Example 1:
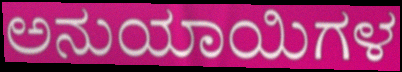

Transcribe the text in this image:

ಅನುಯಾಯಿಗಳ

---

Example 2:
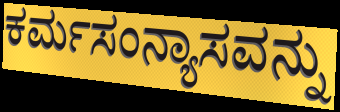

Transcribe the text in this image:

ಕರ್ಮಸಂನ್ಯಾಸವನ್ನು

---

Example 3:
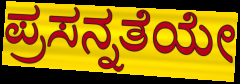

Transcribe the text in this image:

ಪ್ರಸನ್ನತೆಯೇ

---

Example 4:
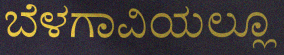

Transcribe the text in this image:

ಬೆಳಗಾವಿಯಲ್ಲೂ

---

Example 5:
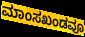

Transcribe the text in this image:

ಮಾಂಸಖಂಡವೂ